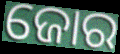
ଜୋର